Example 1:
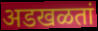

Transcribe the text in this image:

अडखळतां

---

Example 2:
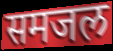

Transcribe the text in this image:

समजल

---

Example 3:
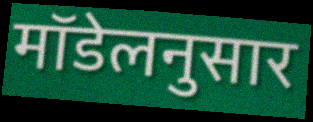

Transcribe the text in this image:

मॉडेलनुसार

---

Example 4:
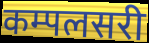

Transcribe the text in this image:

कम्पलसरी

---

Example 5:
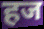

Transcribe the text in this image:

हज